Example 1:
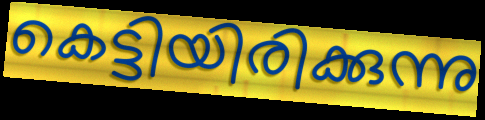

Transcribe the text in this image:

കെട്ടിയിരിക്കുന്നു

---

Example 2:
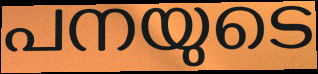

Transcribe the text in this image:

പനയുടെ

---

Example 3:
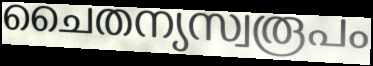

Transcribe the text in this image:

ചൈതന്യസ്വരൂപം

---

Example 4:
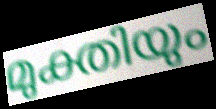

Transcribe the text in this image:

മുക്തിയും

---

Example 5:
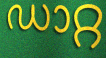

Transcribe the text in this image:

ഡാറ്റ